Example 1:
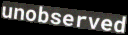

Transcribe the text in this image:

unobserved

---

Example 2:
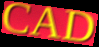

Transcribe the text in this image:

CAD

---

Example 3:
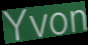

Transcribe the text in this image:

Yvon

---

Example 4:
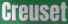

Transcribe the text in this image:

Creuset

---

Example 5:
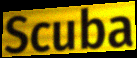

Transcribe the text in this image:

Scuba